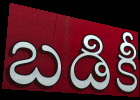
బడికీ